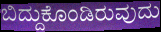
ಬಿದ್ದುಕೊಂಡಿರುವುದು